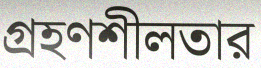
গ্রহণশীলতার